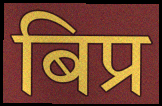
बिप्र